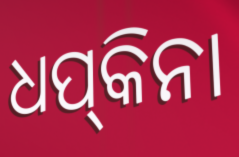
ଧପ୍‍କିନା